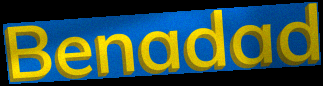
Benadad